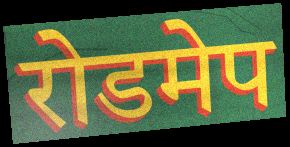
रोडमेप